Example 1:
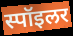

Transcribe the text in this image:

स्पॉइलर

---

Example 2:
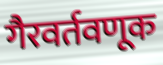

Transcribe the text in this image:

गैरवर्तवणूक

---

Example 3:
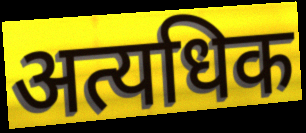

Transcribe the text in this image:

अत्यधिक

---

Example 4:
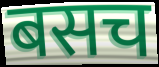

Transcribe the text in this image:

बसच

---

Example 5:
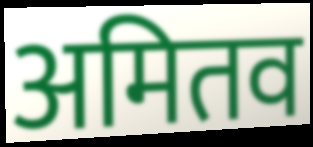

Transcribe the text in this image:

अमितव